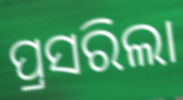
ପ୍ରସରିଲା